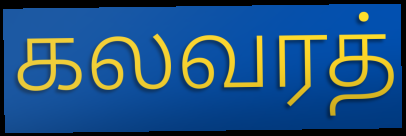
கலவரத்